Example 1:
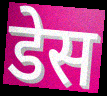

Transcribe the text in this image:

डेस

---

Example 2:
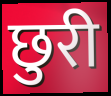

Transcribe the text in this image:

छुरी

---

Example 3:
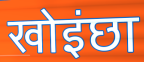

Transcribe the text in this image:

खोइंछा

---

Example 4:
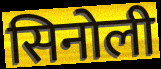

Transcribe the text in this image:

सिनोली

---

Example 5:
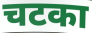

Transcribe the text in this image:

चटका